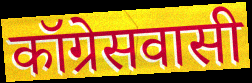
कॉग्रेसवासी